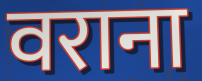
वराना